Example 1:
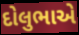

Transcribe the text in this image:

દોલુભાએ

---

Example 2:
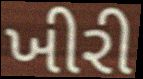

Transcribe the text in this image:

ખીરી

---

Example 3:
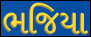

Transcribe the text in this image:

ભજિયા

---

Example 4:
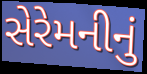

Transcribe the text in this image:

સેરેમનીનું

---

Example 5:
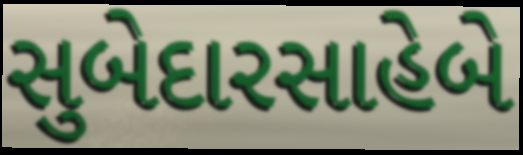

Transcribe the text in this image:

સુબેદારસાહેબે